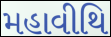
મહાવીથિ